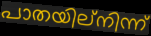
പാതയില്നിന്ന്